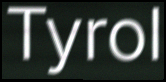
Tyrol